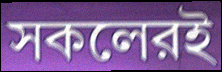
সকলেরই